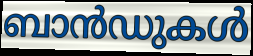
ബാൻഡുകൾ